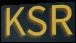
KSR